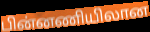
பின்னணியிலான